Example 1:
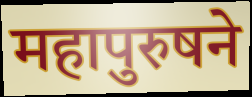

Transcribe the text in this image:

महापुरुषने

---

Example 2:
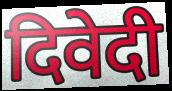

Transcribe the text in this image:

दिवेदी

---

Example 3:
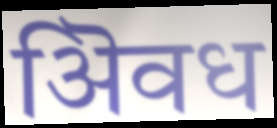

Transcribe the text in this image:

ऄिवध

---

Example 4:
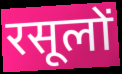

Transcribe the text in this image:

रसूलों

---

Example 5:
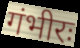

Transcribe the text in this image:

गंभीरः